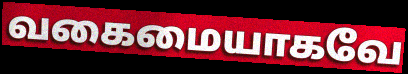
வகைமையாகவே